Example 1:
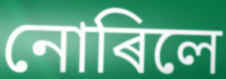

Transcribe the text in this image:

নোৰিলে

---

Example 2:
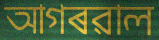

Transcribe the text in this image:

আগৰৱাল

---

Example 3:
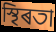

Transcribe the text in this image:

স্থিৰতা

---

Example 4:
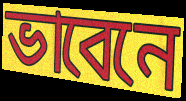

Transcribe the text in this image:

ভাবেনে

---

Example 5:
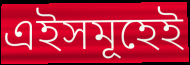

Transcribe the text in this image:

এইসমূহেই